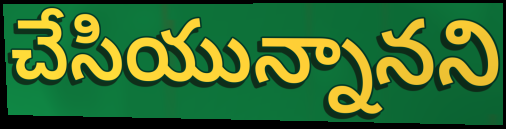
చేసియున్నానని